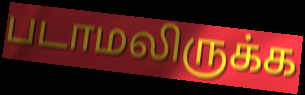
படாமலிருக்க